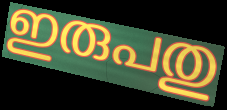
ഇരുപതു